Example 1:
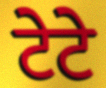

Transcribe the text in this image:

टेटे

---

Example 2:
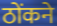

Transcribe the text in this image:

ठोंकने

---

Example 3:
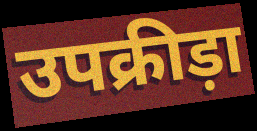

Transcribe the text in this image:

उपक्रीड़ा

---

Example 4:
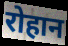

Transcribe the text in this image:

रोहान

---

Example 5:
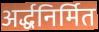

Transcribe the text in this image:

अर्द्धनिर्मित